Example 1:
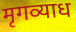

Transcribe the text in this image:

मृगव्याध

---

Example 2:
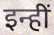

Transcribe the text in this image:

इन्हीं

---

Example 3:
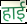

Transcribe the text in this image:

हाई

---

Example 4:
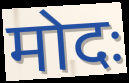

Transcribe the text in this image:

मोदः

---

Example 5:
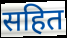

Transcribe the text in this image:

सहित